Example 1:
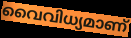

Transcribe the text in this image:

വൈവിധ്യമാണ്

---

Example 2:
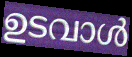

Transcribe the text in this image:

ഉടവാൾ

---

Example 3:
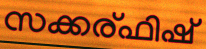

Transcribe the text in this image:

സക്കര്ഫിഷ്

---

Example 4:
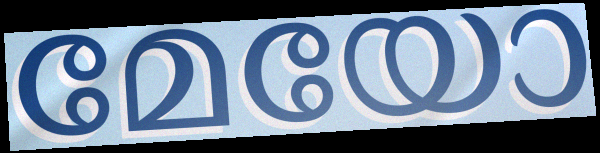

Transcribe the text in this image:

മേയോ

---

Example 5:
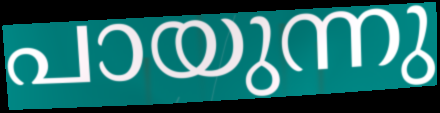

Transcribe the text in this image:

പായുന്നു